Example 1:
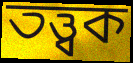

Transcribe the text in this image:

তত্ত্বক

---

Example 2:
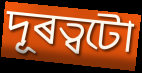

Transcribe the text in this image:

দূৰত্বটো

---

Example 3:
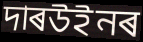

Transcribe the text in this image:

দাৰউইনৰ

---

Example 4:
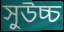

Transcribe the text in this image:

সুউচ্চ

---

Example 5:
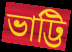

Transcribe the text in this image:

ভাট্টি